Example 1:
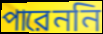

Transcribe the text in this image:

পারেননি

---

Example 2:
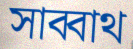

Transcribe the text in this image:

সাব্বাথ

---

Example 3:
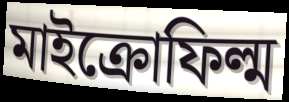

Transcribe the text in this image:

মাইক্রোফিল্ম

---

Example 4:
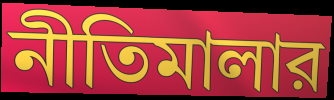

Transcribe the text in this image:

নীতিমালার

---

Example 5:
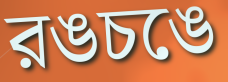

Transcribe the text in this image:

রঙচঙে